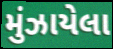
મુંઝાયેલા